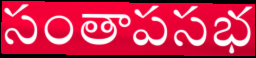
సంతాపసభ